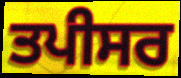
ਤਪੀਸਰ